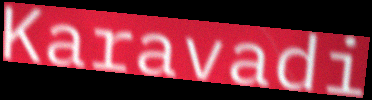
Karavadi